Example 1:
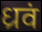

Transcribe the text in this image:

ध्रवं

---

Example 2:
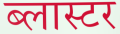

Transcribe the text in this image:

ब्लास्टर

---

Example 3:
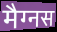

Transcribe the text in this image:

मैग्नस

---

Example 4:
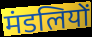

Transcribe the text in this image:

मंडलियों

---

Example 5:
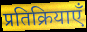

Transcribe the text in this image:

प्रतिक्रियाएँ